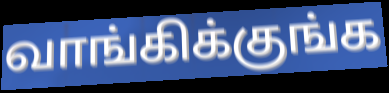
வாங்கிக்குங்க